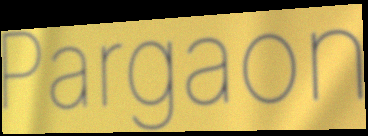
Pargaon